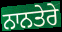
ਨਾਨਤੇਰੇ